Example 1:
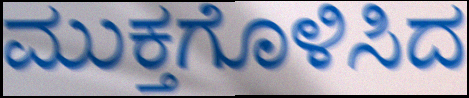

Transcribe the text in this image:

ಮುಕ್ತಗೊಳಿಸಿದ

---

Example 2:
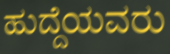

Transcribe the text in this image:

ಹುದ್ದೆಯವರು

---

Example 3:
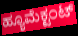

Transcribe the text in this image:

ಹ್ಯೂಮೆಕ್ಟಂಟ್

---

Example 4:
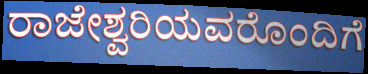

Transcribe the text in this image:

ರಾಜೇಶ್ವರಿಯವರೊಂದಿಗೆ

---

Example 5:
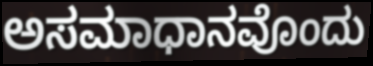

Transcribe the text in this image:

ಅಸಮಾಧಾನವೊಂದು